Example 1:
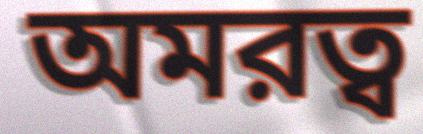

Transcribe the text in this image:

অমরত্ব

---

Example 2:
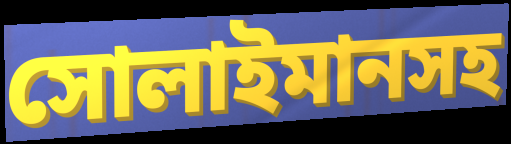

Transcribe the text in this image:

সোলাইমানসহ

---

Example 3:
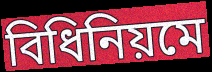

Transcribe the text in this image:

বিধিনিয়মে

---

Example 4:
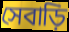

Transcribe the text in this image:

সেবাড়ি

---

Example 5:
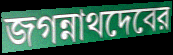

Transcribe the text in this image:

জগন্নাথদেবের